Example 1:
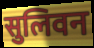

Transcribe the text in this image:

सुलिवन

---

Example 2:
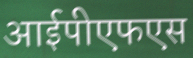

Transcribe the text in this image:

आईपीएफएस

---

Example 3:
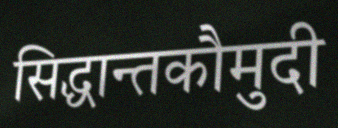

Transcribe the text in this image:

सिद्धान्तकौमुदी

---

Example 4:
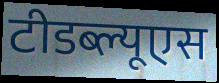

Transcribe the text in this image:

टीडब्ल्यूएस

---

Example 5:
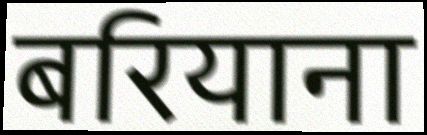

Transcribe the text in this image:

बरियाना